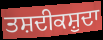
ਤਸ਼ਦੀਕਸ਼ੁਦਾ